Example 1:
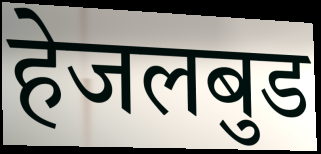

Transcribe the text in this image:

हेजलबुड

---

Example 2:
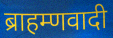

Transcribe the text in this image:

ब्राहम्णवादी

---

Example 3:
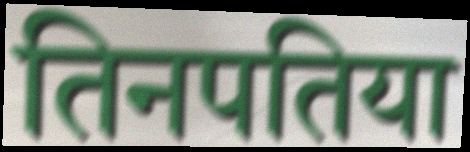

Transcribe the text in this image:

तिनपतिया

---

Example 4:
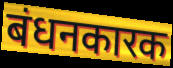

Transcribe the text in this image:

बंधनकारक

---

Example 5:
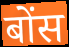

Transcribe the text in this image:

बोंस